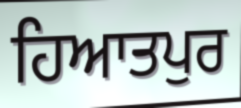
ਹਿਆਤਪੁਰ